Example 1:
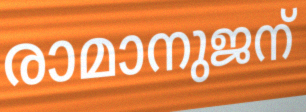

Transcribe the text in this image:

രാമാനുജന്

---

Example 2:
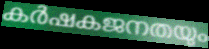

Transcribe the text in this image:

കർഷകജനതയും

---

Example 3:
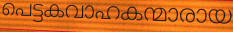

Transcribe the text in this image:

പെട്ടകവാഹകന്മാരായ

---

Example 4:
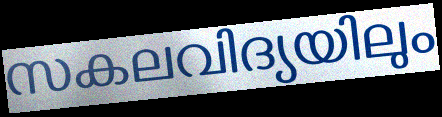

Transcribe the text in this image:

സകലവിദ്യയിലും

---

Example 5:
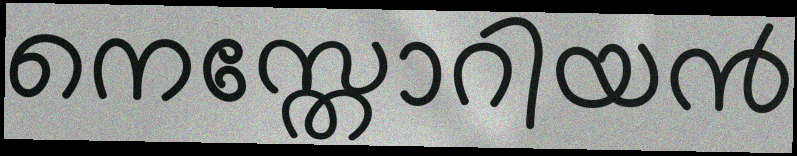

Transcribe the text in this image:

നെസ്തോറിയൻ